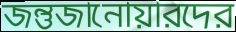
জন্তুজানোয়ারদের